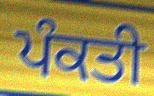
ਪੰਕਤੀ